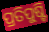
ପ୍ରତିପୁଷ୍ଟି